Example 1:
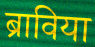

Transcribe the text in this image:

ब्राविया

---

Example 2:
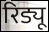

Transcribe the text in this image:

रिड्यू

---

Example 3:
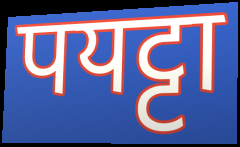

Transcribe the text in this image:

पयट्टा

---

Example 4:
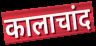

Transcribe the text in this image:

कालाचांद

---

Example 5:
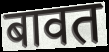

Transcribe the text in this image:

बावत